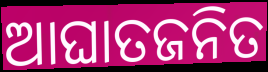
ଆଘାତଜନିତ